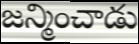
జన్మించాడు